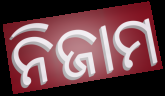
ନିଜାମ